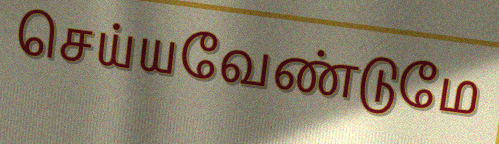
செய்யவேண்டுமே